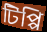
টিপ্পি